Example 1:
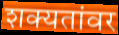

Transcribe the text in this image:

शक्यतांवर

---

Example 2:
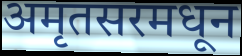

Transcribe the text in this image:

अमृतसरमधून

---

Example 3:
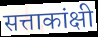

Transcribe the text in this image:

सत्ताकांक्षी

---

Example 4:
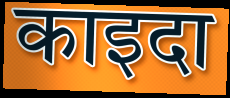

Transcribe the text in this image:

काइदा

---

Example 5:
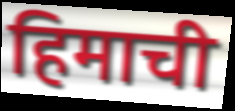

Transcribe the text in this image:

हिमाची